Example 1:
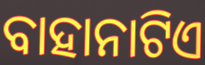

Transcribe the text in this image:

ବାହାନାଟିଏ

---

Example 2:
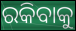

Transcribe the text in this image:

ରକିବାକୁ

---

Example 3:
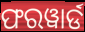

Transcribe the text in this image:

ଫରୱାର୍ଡ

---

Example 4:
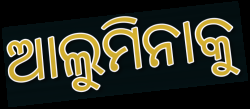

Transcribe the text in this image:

ଆଲୁମିନାକୁ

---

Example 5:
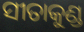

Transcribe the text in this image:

ସୀତାକୁଣ୍ଡ